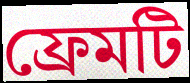
ফ্রেমটি